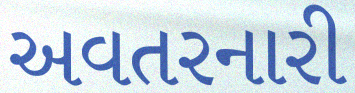
અવતરનારી